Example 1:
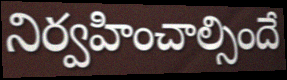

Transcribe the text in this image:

నిర్వహించాల్సిందే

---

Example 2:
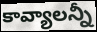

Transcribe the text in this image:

కావ్యాలన్నీ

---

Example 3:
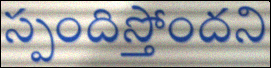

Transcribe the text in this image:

స్పందిస్తోందని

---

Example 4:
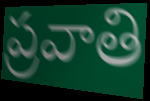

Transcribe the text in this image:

ప్రవాతి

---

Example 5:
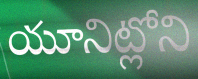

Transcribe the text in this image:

యూనిట్లోని